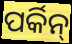
ପର୍କିନ୍